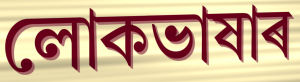
লোকভাষাৰ